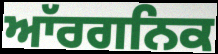
ਆੱਰਗਨਿਕ